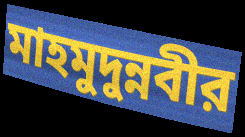
মাহমুদুন্নবীর